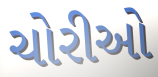
ચોરીઓ